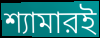
শ্যামারই